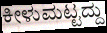
ಕೀಳುಮಟ್ಟದ್ದು